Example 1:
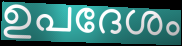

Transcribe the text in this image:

ഉപദേശം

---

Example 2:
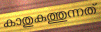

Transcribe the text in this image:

കാതുകുത്തുന്നത്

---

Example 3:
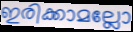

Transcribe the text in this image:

ഇരിക്കാമല്ലോ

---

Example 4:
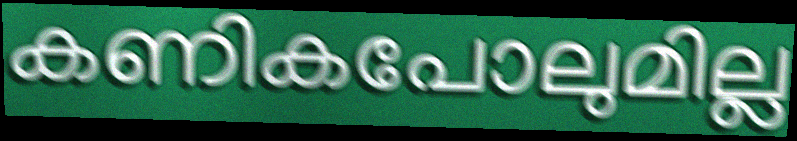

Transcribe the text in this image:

കണികപോലുമില്ല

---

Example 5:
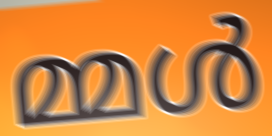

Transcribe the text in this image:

മ്മൾ